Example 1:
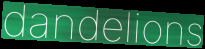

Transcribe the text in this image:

dandelions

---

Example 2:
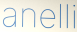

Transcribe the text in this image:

anelli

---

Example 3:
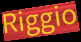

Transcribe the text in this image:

Riggio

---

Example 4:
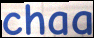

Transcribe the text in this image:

chaa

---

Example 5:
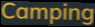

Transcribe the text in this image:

Camping